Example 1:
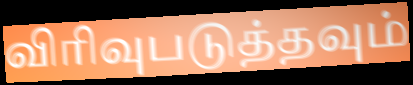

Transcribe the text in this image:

விரிவுபடுத்தவும்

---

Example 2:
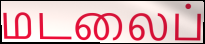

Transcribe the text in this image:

மடலைப்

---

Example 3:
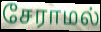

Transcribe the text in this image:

சேராமல்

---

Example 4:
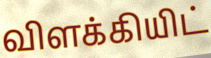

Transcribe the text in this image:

விளக்கியிட்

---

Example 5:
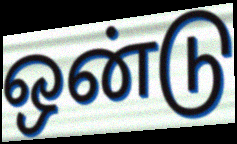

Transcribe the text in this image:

ஒன்டு